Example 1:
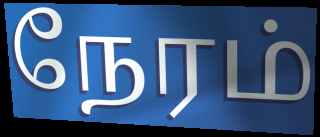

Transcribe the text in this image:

நேரம்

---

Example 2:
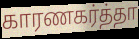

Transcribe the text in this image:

காரணகர்த்தா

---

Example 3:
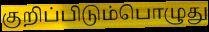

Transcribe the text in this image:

குறிப்பிடும்பொழுது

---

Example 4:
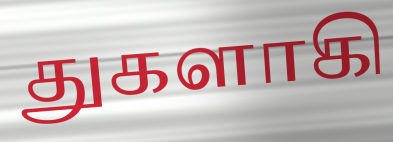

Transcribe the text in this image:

துகளாகி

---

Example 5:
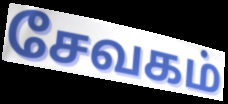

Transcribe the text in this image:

சேவகம்